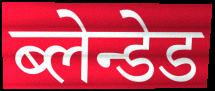
ब्लेन्डेड